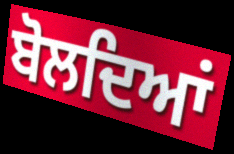
ਬੋਲਦਿਆਂ